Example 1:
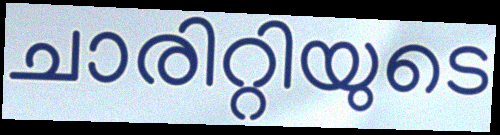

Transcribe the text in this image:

ചാരിറ്റിയുടെ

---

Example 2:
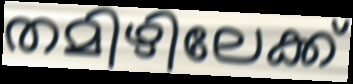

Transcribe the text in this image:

തമിഴിലേക്ക്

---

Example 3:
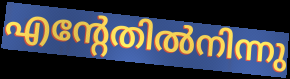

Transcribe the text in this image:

എന്റേതിൽനിന്നു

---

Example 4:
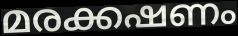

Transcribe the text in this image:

മരക്കഷണം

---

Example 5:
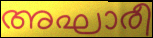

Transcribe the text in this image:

അഘാരീ